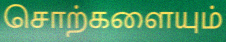
சொற்களையும்